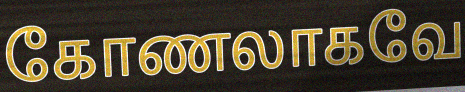
கோணலாகவே